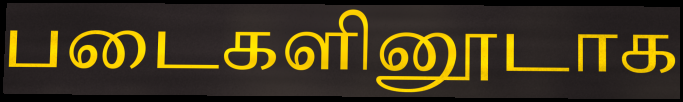
படைகளினூடாக